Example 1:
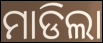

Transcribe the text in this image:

ମାଡିଲା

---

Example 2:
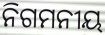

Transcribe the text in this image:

ନିଗମନୀୟ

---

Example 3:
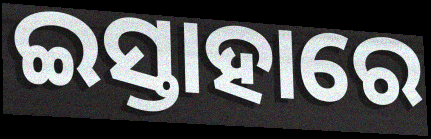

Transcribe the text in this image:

ଇସ୍ତାହାରେ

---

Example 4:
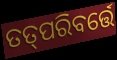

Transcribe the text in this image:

ତତ୍‌ପରିବର୍ତ୍ତେ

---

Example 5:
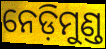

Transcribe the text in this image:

ନେଡ଼ିମୁଣ୍ଡ